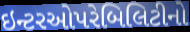
ઇન્ટરઓપરેબિલિટીનો